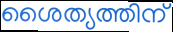
ശൈത്യത്തിന്